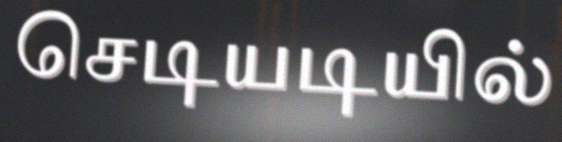
செடியடியில்